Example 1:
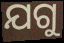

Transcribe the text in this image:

ଯଗୁ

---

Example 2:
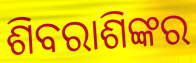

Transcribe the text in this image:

ଶିବରାଶିଙ୍କର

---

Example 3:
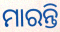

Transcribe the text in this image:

ମାରନ୍ତି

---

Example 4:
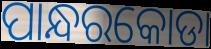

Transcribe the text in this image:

ପାନ୍ଧରକୋଡା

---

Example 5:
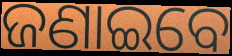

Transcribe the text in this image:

ଜଣାଇବେ